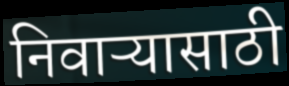
निवाऱ्यासाठी